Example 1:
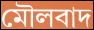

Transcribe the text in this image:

মৌলবাদ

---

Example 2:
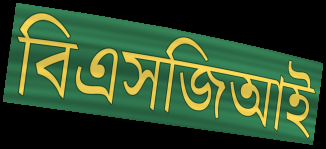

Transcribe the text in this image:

বিএসজিআই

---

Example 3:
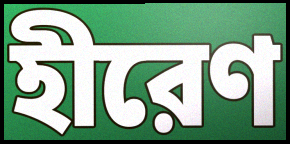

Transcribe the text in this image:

হীরেণ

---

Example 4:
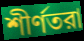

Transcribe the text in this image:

শীর্ণতরা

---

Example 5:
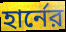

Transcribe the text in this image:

হার্নের